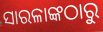
ସାରଳାଙ୍କଠାରୁ